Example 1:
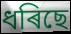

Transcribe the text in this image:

ধৰিছে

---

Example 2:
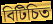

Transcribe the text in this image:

বিটিচিত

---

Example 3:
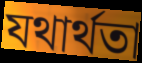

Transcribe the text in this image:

যথাৰ্থতা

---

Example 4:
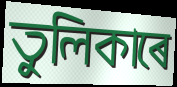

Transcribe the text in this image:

তুলিকাৰে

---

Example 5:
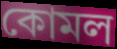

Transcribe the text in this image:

কোমল